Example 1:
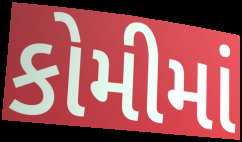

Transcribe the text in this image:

કોમીમાં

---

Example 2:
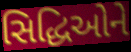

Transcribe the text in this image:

સિદ્ધિઓને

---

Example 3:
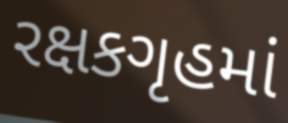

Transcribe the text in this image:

રક્ષકગૃહમાં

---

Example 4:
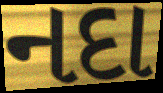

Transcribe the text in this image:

નદા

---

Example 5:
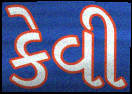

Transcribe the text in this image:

કેવી